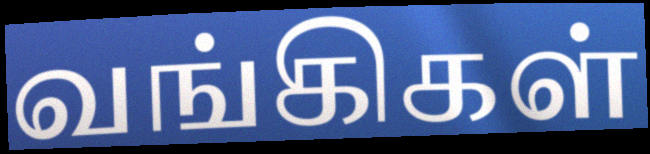
வங்கிகள்